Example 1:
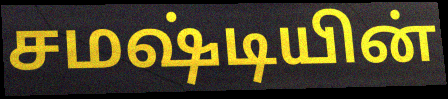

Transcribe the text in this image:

சமஷ்டியின்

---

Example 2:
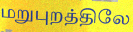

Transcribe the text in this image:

மறுபுறத்திலே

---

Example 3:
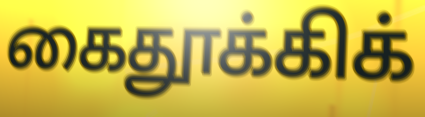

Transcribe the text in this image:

கைதூக்கிக்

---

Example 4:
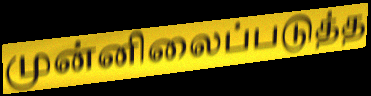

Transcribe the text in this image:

முன்னிலைப்படுத்த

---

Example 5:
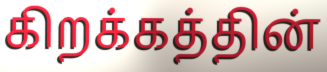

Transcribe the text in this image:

கிறக்கத்தின்